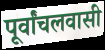
पूर्वांचलवासी